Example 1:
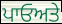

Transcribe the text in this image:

ਪਾਓਅਤੇ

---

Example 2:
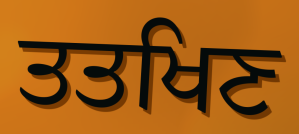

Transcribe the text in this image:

ਤਤਖਿਣ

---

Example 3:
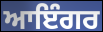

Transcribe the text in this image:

ਆਇੰਗਰ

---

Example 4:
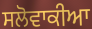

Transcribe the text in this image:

ਸਲੋਵਾਕੀਆ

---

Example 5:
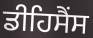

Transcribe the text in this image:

ਡੀਹਿਸੈਂਸ